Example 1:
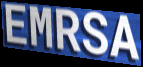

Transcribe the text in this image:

EMRSA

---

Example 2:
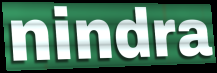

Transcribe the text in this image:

nindra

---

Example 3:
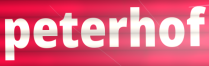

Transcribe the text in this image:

peterhof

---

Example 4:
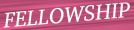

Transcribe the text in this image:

FELLOWSHIP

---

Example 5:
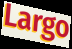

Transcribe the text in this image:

Largo